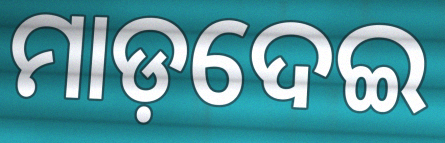
ମାଡ଼ଦେଇ